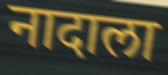
नादाला